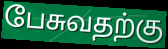
பேசுவதற்கு